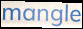
mangle